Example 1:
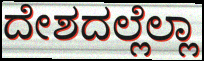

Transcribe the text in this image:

ದೇಶದಲ್ಲೆಲ್ಲಾ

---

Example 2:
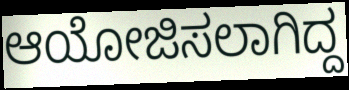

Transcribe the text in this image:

ಆಯೋಜಿಸಲಾಗಿದ್ದ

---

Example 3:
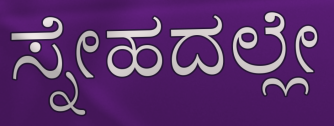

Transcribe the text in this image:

ಸ್ನೇಹದಲ್ಲೇ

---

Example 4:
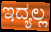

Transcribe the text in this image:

ಇದ್ಯಲ್ಲ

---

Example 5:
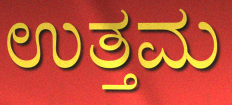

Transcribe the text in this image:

ಉತ್ತಮ